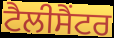
ਟੈਲੀਸੈਂਟਰ